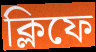
ক্লিফে